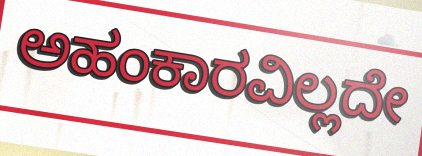
ಅಹಂಕಾರವಿಲ್ಲದೇ